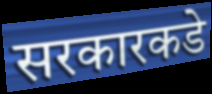
सरकारकडे